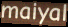
maiyal